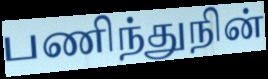
பணிந்துநின்